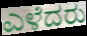
ಎಳೆದರು